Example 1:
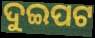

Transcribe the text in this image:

ଦୁଇପଟ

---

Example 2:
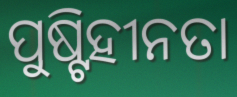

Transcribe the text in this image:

ପୁଷ୍ଟିହୀନତା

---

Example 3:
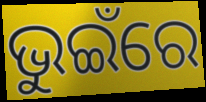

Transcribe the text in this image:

ଭୁଇଁରେ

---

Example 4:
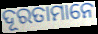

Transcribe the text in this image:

ଦୂରତାମାନେ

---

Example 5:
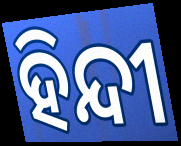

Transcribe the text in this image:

ହିନ୍ଦୀ